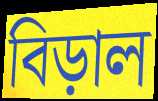
বিড়াল